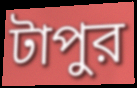
টাপুর